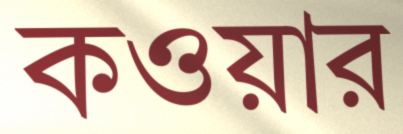
কওয়ার